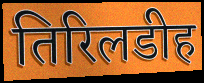
तिरिलडीह